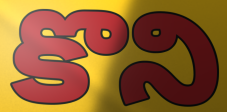
కొని